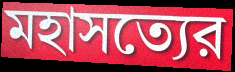
মহাসত্যের